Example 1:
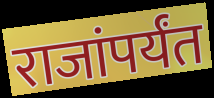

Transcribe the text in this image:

राजांपर्यंत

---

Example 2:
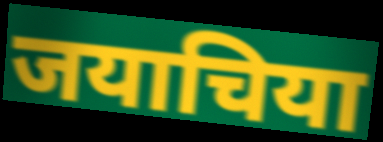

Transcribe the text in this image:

जयाचिया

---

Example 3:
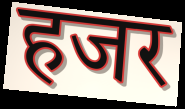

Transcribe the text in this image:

हजर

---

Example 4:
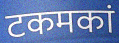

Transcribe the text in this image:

टकमकां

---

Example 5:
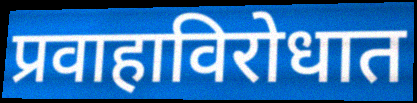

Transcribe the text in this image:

प्रवाहाविरोधात